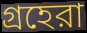
গ্রহেরা